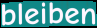
bleiben